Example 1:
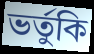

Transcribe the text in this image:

ভর্তুকি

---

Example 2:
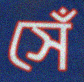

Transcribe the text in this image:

সেঁ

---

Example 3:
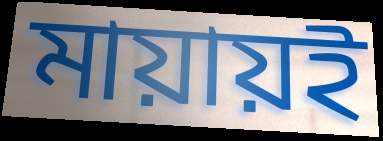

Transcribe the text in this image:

মায়ায়ই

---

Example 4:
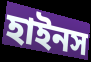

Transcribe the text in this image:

হাইনস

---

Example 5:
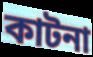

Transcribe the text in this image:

কাটনা